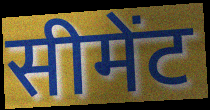
सीमेंट